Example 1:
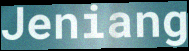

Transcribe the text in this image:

Jeniang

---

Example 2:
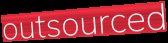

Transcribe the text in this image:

outsourced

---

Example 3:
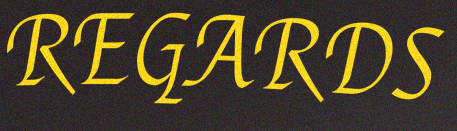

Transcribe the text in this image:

REGARDS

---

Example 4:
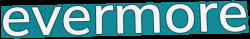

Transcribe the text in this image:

evermore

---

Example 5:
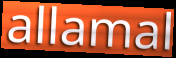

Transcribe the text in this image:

allamal